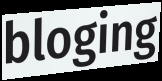
bloging